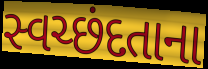
સ્વચ્છંદતાના